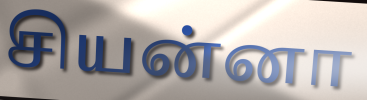
சியன்னா